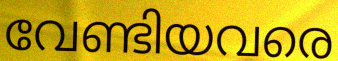
വേണ്ടിയവരെ